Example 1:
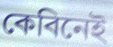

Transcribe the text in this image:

কেবিনেই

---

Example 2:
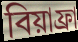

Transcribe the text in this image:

বিয়াফ্রা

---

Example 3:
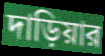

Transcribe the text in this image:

দাড়িয়ার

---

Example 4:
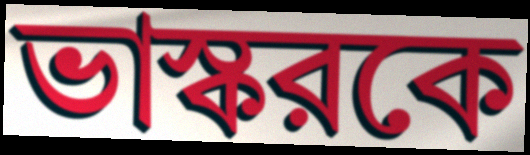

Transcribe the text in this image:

ভাস্করকে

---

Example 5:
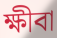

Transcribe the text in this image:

ক্ষীবা